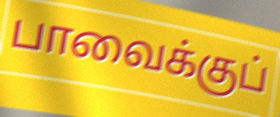
பாவைக்குப்